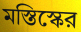
মস্তিস্কের